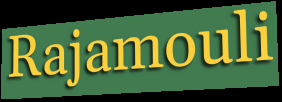
Rajamouli